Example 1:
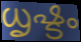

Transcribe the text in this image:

ധൃഷ്ടം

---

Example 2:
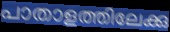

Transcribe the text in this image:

പാതാളത്തിലേക്കു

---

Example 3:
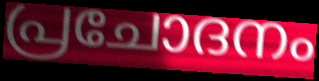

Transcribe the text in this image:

പ്രചോദനം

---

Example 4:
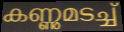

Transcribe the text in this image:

കണ്ണുമടച്ച്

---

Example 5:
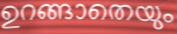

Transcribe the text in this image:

ഉറങ്ങാതെയും